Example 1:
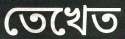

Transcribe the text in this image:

তেখেত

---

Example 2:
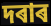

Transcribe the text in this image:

দৰাৰ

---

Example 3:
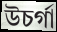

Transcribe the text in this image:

উচৰ্গা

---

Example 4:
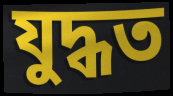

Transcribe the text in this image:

যুদ্ধত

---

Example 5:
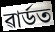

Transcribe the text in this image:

ৱাৰ্ডত